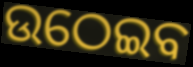
ଉଠେଇବ